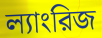
ল্যাংরিজ